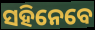
ସହିନେବେ